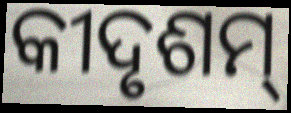
କୀଦୃଶମ୍